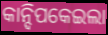
କାନ୍ଦିପକେଇଲା